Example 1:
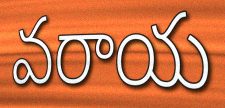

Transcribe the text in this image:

వరాయ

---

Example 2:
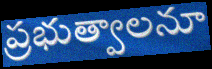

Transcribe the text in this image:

ప్రభుత్వాలనూ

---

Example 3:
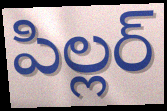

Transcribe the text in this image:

పిల్లర్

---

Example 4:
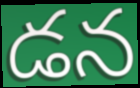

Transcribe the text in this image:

డన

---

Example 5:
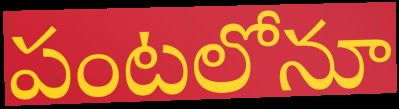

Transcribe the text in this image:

పంటలోనూ